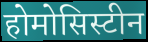
होमोसिस्टीन